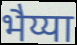
भैय्या